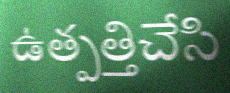
ఉత్పత్తిచేసి